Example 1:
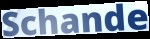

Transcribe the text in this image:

Schande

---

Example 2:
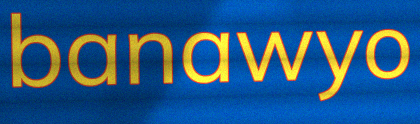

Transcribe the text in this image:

banawyo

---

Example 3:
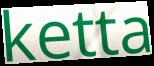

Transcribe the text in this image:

ketta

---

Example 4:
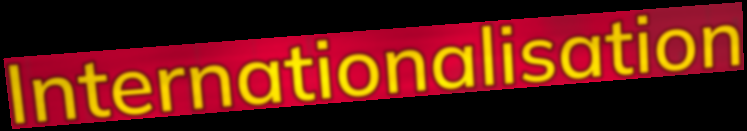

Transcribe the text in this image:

Internationalisation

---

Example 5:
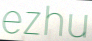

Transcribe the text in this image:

ezhu